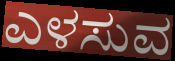
ಎಳಸುವ